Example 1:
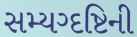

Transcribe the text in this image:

સમ્યગ્દષ્ટિની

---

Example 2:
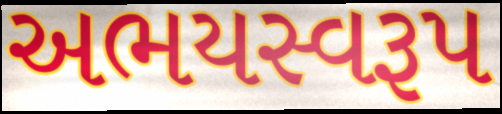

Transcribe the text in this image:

અભયસ્વરૂપ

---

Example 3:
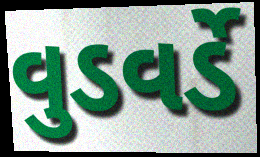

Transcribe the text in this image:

વુડવર્ડે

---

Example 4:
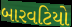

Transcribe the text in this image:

બારવટિયો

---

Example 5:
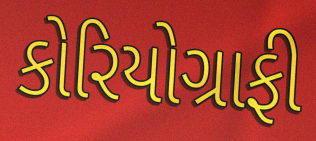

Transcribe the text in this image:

કોરિયોગ્રાફી